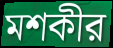
মশকীর